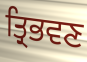
ਤ੍ਰਿਭਵਣ